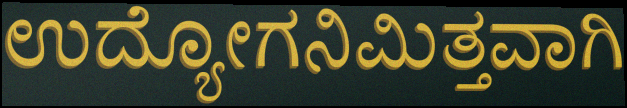
ಉದ್ಯೋಗನಿಮಿತ್ತವಾಗಿ